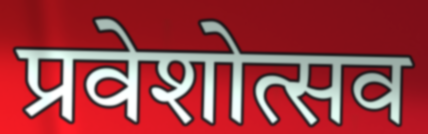
प्रवेशोत्सव